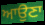
ਆਉਣਾ